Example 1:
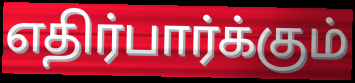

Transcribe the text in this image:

எதிர்பார்க்கும்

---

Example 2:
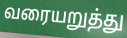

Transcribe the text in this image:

வரையறுத்து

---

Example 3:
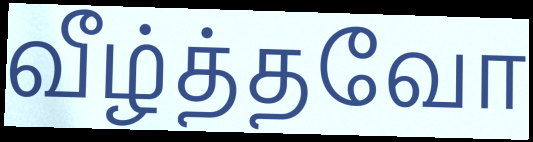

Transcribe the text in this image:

வீழ்த்தவோ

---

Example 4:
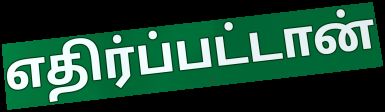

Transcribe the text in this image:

எதிர்ப்பட்டான்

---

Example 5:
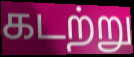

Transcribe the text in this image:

கடற்று